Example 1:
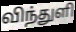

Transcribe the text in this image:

விந்துளி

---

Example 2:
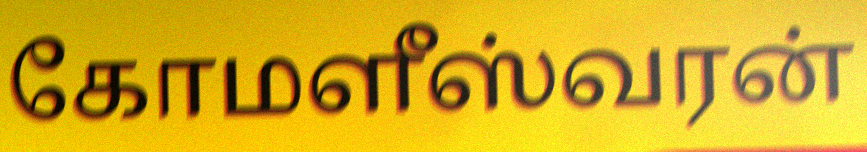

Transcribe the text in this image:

கோமளீஸ்வரன்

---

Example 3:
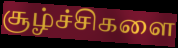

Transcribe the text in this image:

சூழ்ச்சிகளை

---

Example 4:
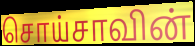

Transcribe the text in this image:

சொய்சாவின்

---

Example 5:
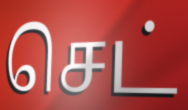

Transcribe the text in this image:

செட்